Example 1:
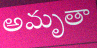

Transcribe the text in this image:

అమృతా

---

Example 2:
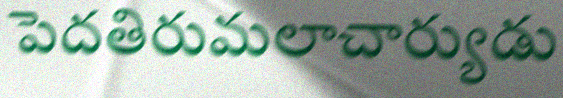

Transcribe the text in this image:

పెదతిరుమలాచార్యుడు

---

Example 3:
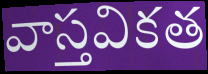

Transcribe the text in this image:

వాస్తవికత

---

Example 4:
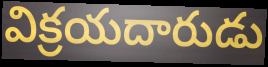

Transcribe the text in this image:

విక్రయదారుడు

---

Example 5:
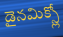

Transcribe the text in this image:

డైనమిక్స్లో